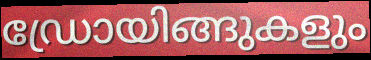
ഡ്രോയിങ്ങുകളും